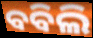
ବବିଲି